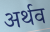
अर्थव